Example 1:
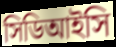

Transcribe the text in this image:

সিডিআইসি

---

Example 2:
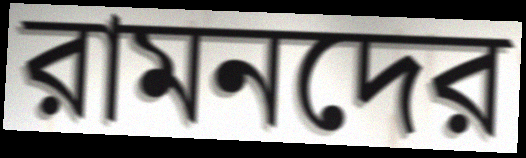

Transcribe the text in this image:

রামনদের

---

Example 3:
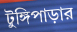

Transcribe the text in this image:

টুঙ্গিপাড়ার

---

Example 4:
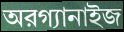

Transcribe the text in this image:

অরগ্যানাইজ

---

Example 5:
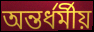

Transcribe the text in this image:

অন্তর্ধর্মীয়